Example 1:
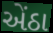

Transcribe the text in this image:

એંઠા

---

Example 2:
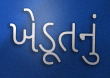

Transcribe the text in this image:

ખેડૂતનું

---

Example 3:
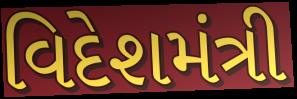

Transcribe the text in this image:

વિદેશમંત્રી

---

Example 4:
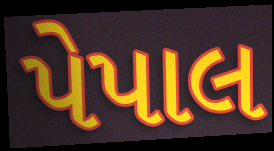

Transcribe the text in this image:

પેપાલ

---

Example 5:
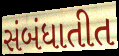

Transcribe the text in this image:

સંબંધાતીત